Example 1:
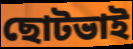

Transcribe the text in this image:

ছোটভাই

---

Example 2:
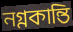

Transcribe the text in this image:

নগ্নকান্তি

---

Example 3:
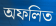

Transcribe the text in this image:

অফলিত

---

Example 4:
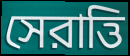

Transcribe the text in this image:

সেরাত্তি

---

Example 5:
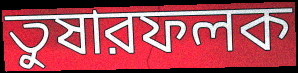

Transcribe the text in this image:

তুষারফলক